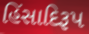
હિંસાદિરૂપ